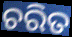
ଚରିତ